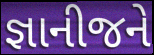
જ્ઞાનીજને